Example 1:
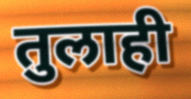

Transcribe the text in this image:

तुलाही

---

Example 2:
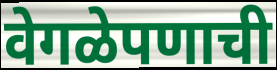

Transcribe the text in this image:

वेगळेपणाची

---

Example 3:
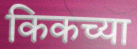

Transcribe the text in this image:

किकच्या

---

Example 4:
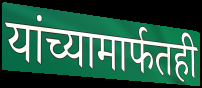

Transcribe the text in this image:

यांच्यामार्फतही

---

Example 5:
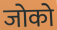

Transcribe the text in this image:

जोको